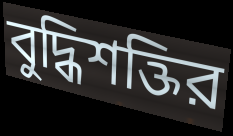
বুদ্ধিশক্তির